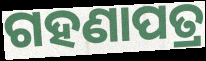
ଗହଣାପତ୍ର